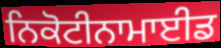
ਨਿਕੋਟੀਨਾਮਾਈਡ